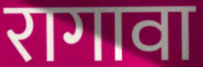
रागावा